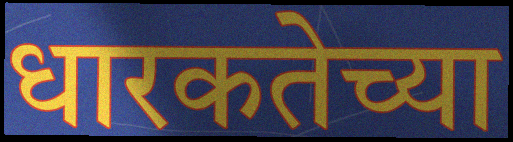
धारकतेच्या